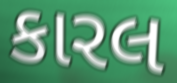
કારલ